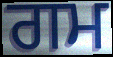
ਗਮ